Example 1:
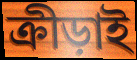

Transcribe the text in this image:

ক্রীড়াই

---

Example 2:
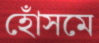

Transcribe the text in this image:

হোঁসমে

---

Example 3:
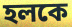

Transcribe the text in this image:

হলকে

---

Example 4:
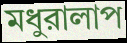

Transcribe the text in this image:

মধুরালাপ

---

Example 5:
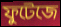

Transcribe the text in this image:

ফুটেজে